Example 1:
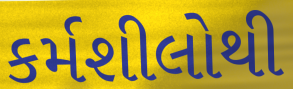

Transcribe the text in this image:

કર્મશીલોથી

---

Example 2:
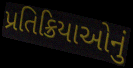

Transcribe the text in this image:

પ્રતિક્રિયાઓનું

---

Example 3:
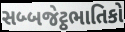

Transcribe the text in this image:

સબ્બજેટ્ઠભાતિકો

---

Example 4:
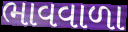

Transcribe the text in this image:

ભાવવાળા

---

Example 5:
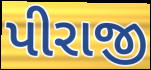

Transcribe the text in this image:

પીરાજી